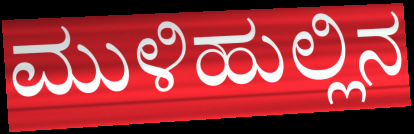
ಮುಳಿಹುಲ್ಲಿನ